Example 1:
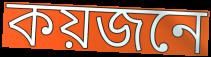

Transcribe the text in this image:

কয়জনে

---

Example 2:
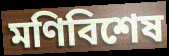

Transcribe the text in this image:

মণিবিশেষ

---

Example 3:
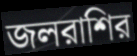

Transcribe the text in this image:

জলরাশির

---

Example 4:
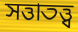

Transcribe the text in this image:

সত্তাতত্ত্ব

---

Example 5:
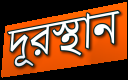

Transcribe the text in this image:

দূরস্থান